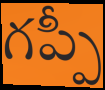
గప్పీ